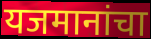
यजमानांचा